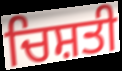
ਚਿਸ਼ਤੀ